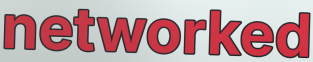
networked